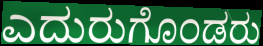
ಎದುರುಗೊಂಡರು